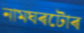
নামঘৰটোৰ